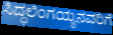
ಸಿದ್ಧಲಿಂಗಯ್ಯನವರಿಗೆ